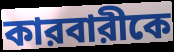
কারবারীকে